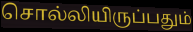
சொல்லியிருப்பதும்